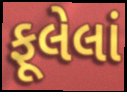
ફૂલેલાં